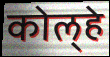
कोल्हे